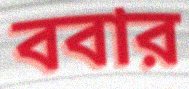
ববার